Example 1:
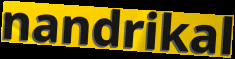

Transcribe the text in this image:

nandrikal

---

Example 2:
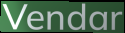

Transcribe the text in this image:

Vendar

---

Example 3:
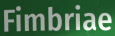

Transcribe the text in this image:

Fimbriae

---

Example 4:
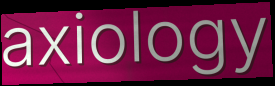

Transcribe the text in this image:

axiology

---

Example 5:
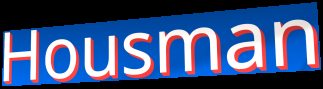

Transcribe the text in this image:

Housman